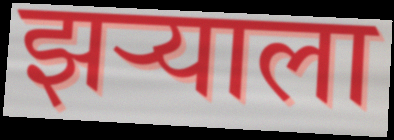
झर्‍याला